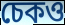
চেকও